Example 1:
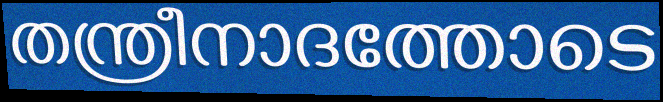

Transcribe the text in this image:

തന്ത്രീനാദത്തോടെ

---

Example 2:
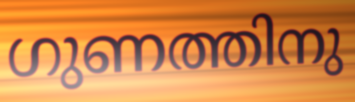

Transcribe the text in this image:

ഗുണത്തിനു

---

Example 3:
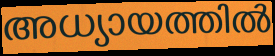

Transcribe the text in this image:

അധ്യായത്തിൽ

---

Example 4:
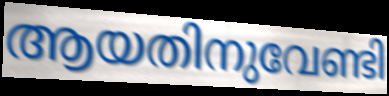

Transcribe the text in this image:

ആയതിനുവേണ്ടി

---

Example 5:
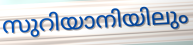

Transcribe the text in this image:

സുറിയാനിയിലും